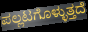
ಪಲ್ಲಟಗೊಳ್ಳುತ್ತದೆ